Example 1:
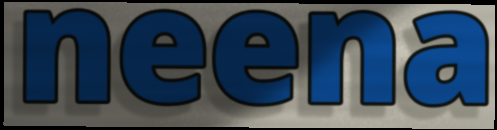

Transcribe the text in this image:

neena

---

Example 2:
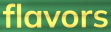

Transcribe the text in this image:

flavors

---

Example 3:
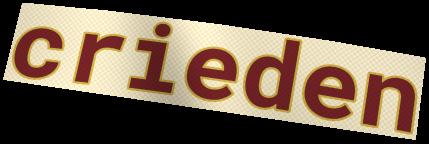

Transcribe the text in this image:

crieden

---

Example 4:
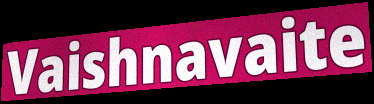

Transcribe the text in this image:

Vaishnavaite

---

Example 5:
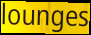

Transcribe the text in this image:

lounges